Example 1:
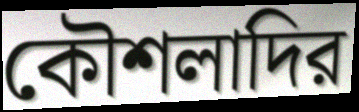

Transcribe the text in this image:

কৌশলাদির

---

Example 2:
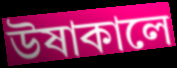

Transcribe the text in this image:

উষাকালে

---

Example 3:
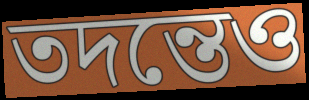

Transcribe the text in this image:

তদন্তেও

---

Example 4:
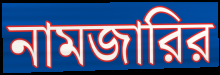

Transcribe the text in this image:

নামজারির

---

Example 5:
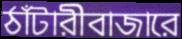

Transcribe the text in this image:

ঠাঁটারীবাজারে